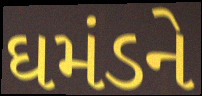
ઘમંડને